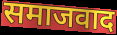
समाजवाद